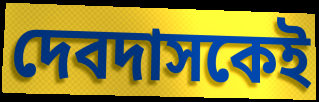
দেবদাসকেই